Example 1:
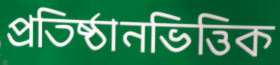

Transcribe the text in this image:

প্রতিষ্ঠানভিত্তিক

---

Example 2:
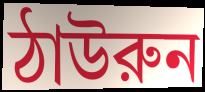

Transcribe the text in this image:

ঠাউরুন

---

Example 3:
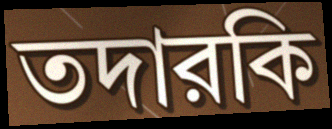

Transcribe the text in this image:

তদারকি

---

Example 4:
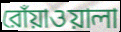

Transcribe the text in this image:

রোঁয়াওয়ালা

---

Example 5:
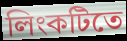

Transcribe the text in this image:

লিংকটিতে